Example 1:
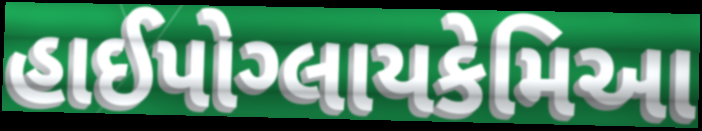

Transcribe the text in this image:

હાઈપોગ્લાયકેમિઆ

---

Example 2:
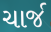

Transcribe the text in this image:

ચાર્જ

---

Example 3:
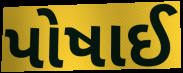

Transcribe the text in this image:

પોષાઈ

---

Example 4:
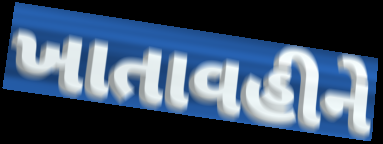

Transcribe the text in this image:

ખાતાવહીને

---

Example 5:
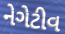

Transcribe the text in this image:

નેગેટીવ